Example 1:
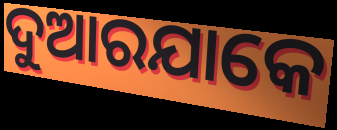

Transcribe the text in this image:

ଦୁଆରଯାକେ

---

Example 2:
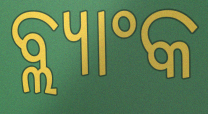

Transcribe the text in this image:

ବ୍ଲ୍ଯାଂକ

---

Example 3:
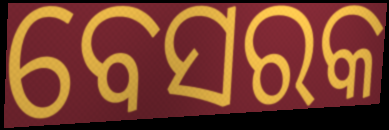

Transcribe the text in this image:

ବେସରକ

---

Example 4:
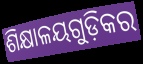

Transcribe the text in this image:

ଶିକ୍ଷାଳୟଗୁଡ଼ିକର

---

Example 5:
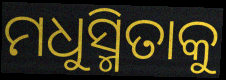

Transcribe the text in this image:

ମଧୁସ୍ମିତାକୁ